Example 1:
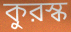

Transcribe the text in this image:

কুরস্ক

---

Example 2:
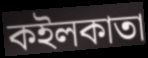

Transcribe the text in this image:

কইলকাতা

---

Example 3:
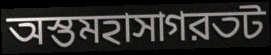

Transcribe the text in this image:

অস্তমহাসাগরতট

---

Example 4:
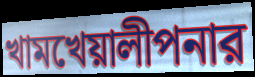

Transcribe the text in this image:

খামখেয়ালীপনার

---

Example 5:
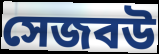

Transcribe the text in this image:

সেজবউ